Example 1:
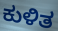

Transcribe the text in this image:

ಕುಳಿತ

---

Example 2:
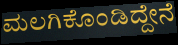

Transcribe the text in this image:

ಮಲಗಿಕೊಂಡಿದ್ದೇನೆ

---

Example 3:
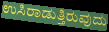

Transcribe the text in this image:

ಉಸಿರಾಡುತ್ತಿರುವುದು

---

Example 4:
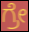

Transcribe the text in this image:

ಗ್ರೇ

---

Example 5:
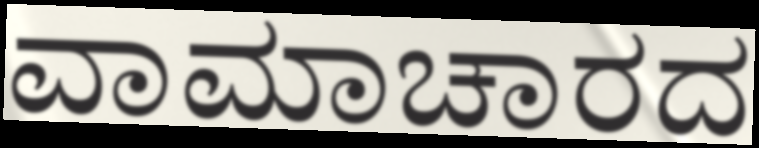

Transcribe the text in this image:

ವಾಮಾಚಾರದ